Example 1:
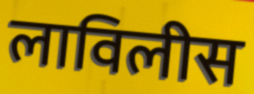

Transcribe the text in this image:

लाविलीस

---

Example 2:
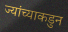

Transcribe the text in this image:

ज्यांच्याकडुन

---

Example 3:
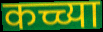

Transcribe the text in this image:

कच्च्या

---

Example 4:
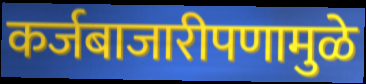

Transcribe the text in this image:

कर्जबाजारीपणामुळे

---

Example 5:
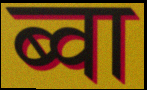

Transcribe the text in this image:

ब्वा